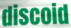
discoid